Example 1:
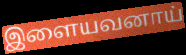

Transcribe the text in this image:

இளையவனாய்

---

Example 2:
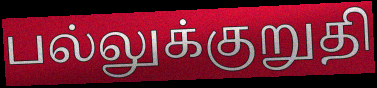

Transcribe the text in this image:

பல்லுக்குறுதி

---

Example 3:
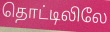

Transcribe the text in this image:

தொட்டிலிலே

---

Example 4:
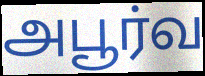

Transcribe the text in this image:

அபூர்வ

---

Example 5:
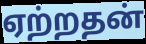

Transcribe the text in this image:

ஏற்றதன்